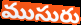
ముసురు